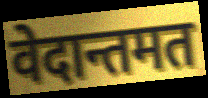
वेदान्तमत